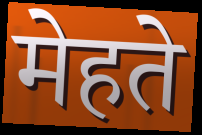
मेहते